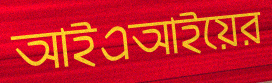
আইএআইয়ের